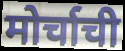
मोर्चाची